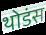
थोडंस